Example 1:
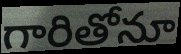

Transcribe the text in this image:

గారితోనూ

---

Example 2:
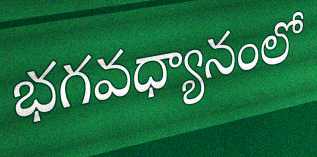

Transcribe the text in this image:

భగవధ్యానంలో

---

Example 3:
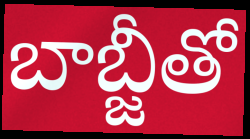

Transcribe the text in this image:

బాబ్జీతో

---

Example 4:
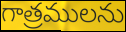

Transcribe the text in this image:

గాత్రములను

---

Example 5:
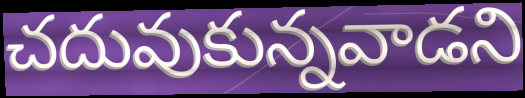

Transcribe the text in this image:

చదువుకున్నవాడని